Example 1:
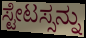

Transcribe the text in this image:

ಸ್ಟೇಟಸ್ಸನ್ನು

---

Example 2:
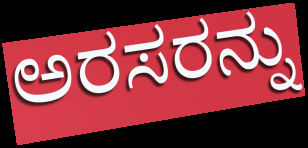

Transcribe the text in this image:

ಅರಸರನ್ನು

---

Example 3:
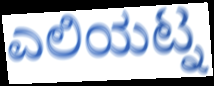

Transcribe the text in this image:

ಎಲಿಯಟ್ನ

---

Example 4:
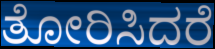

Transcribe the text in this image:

ತೋರಿಸಿದರೆ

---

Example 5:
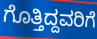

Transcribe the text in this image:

ಗೊತ್ತಿದ್ದವರಿಗೆ